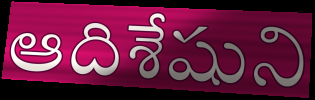
ఆదిశేషుని